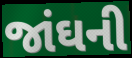
જાંઘની